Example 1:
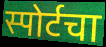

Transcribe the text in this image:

स्पोर्टचा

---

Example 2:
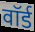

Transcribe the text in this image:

वॉर्ड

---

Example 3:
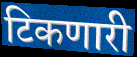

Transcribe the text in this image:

टिकणारी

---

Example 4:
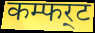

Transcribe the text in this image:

कम्फर्ट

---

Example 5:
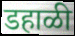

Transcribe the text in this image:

डहाळी